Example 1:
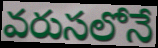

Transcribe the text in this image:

వరుసలోనే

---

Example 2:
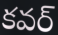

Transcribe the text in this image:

కవర్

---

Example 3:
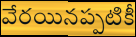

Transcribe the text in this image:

వేరయినప్పటికీ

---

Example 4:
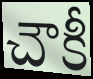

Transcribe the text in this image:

చౌకీ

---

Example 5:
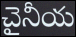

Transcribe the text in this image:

చైనీయ